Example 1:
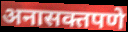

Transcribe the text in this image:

अनासक्तपणे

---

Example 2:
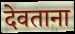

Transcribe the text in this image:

देवताना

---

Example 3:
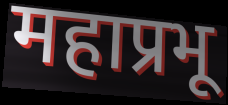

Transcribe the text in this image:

महाप्रभू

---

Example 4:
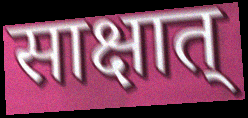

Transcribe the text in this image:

साक्षात्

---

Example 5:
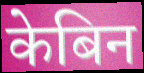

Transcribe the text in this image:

केबिन